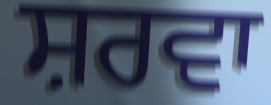
ਸ਼ਰਵਾ